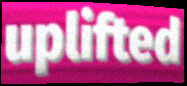
uplifted